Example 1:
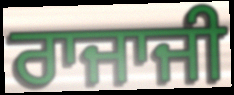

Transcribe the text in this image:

ਰਾਜਾਜੀ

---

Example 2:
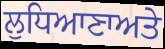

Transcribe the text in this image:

ਲੁਧਿਆਣਾਅਤੇ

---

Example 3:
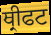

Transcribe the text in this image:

ਥ੍ਰੀਫਟ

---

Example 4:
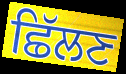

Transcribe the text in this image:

ਛਿੱਲਣ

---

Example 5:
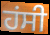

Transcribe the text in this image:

ਹਂਸੀ